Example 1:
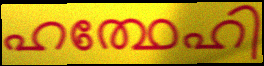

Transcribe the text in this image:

ഹത്ഥേഹി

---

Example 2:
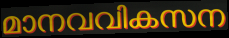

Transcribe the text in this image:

മാനവവികസന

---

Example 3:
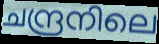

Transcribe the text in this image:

ചന്ദ്രനിലെ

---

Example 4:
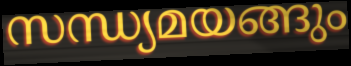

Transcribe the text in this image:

സന്ധ്യമയങ്ങും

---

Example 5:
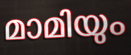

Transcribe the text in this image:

മാമിയും